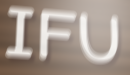
IFU